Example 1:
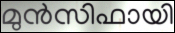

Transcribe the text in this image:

മുൻസിഫായി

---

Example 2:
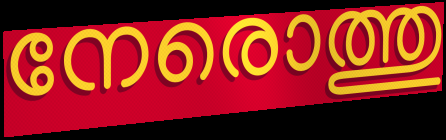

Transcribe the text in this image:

നേരൊത്തു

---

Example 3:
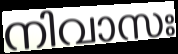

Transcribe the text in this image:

നിവാസഃ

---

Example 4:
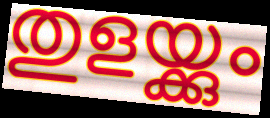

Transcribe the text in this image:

തുളയ്ക്കും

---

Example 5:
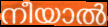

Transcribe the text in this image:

നീയാൽ